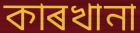
কাৰখানা